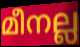
മീനല്ല